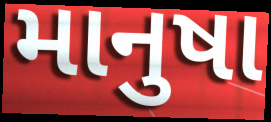
માનુષા